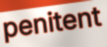
penitent